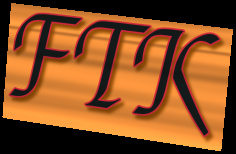
FTK